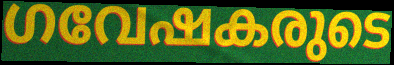
ഗവേഷകരുടെ